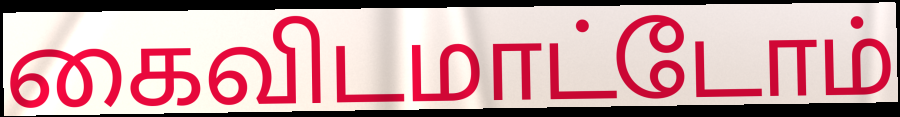
கைவிடமாட்டோம்